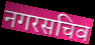
नगरसचिव